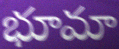
భూమా